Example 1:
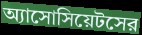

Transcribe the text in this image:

অ্যাসোসিয়েটসের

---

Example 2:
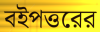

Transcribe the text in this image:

বইপত্তরের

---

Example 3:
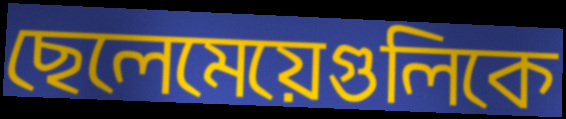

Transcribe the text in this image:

ছেলেমেয়েগুলিকে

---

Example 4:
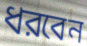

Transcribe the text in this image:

ধরবেন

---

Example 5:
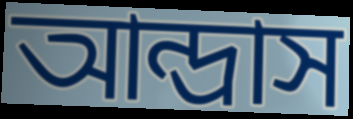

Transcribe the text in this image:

আন্দ্রাস